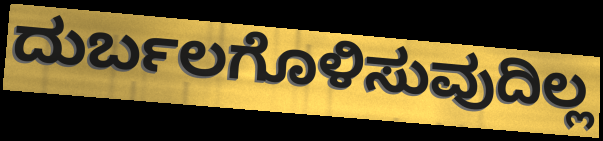
ದುರ್ಬಲಗೊಳಿಸುವುದಿಲ್ಲ